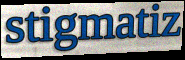
stigmatiz